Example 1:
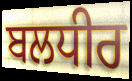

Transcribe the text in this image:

ਬਲਧੀਰ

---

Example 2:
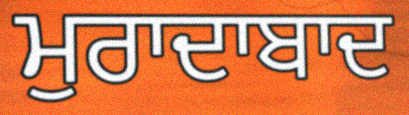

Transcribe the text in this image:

ਮੁਰਾਦਾਬਾਦ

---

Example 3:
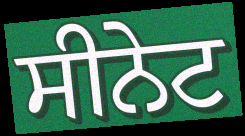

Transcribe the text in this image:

ਸੀਨੇਟ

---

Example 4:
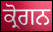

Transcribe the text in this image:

ਕ੍ਰੋਗਨ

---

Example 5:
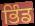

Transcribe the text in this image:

ਭਿੰਡ